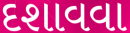
દશાવવા